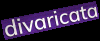
divaricata